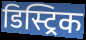
डिस्ट्रिक